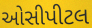
ઓસીપીટલ